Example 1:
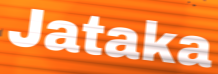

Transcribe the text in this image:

Jataka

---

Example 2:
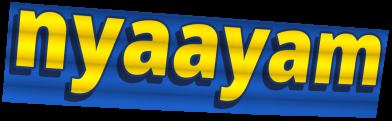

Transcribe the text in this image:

nyaayam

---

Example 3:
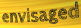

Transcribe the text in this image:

envisaged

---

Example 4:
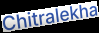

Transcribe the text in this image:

Chitralekha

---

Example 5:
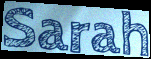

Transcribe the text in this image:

Sarah